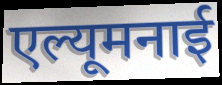
एल्यूमनाई